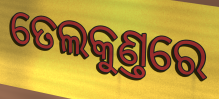
ତେଲକୁଣ୍ତରେ